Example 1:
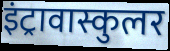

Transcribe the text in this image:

इंट्रावास्कुलर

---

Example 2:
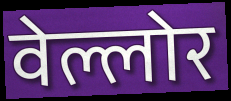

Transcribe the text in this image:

वेल्लोर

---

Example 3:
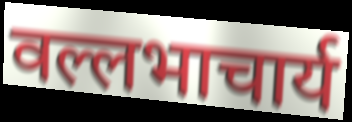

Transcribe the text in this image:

वल्‍लभाचार्य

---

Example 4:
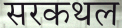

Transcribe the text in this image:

सरकथल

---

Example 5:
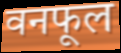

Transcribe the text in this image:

वनफूल